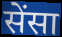
सेंसा